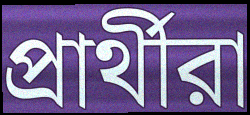
প্রার্থীরা